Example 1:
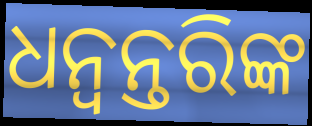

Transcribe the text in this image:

ଧନ୍ୱନ୍ତରିଙ୍କ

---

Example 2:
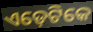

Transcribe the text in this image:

ଏଡ଼େଟିକେ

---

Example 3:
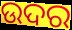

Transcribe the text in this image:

ଉଦର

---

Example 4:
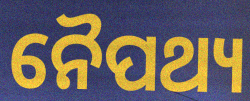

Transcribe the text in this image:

ନୈପଥ୍ୟ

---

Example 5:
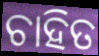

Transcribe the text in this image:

ଚାହିତ